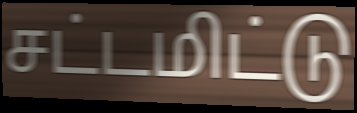
சட்டமிட்டு